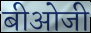
बीओजी